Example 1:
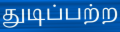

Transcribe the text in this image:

துடிப்பற்ற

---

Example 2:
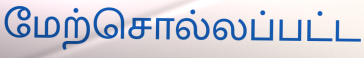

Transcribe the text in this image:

மேற்சொல்லப்பட்ட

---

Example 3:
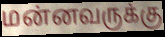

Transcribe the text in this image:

மன்னவருக்கு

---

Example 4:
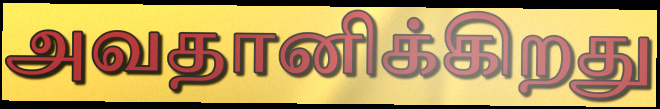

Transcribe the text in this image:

அவதானிக்கிறது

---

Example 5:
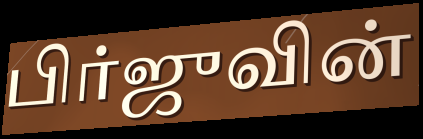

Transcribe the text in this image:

பிர்ஜுவின்